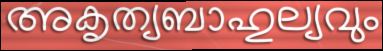
അകൃത്യബാഹുല്യവും